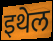
इथेल